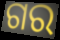
ଗର